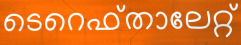
ടെറെഫ്താലേറ്റ്